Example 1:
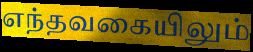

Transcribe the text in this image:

எந்தவகையிலும்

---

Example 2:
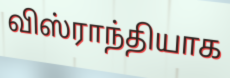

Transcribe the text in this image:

விஸ்ராந்தியாக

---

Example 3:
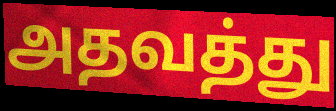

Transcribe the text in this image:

அதவத்து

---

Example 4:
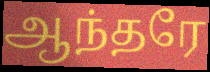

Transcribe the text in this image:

ஆந்தரே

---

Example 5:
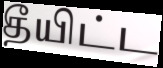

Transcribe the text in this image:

தீயிட்ட